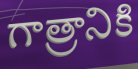
గాత్రానికి